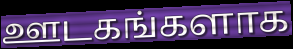
ஊடகங்களாக